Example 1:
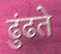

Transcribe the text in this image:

ढुंढते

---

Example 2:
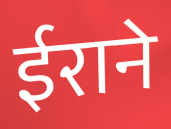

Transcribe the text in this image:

ईराने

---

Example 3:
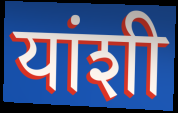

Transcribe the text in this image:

यांशी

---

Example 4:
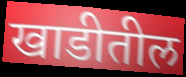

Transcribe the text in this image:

खाडीतील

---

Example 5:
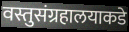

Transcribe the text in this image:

वस्तुसंग्रहालयाकडे